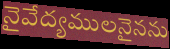
నైవేద్యములనైనను